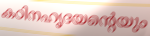
കഠിനഹൃദയന്റെയും